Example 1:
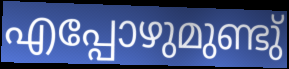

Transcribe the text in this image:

എപ്പോഴുമുണ്ടു്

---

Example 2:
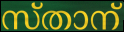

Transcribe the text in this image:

സ്താന്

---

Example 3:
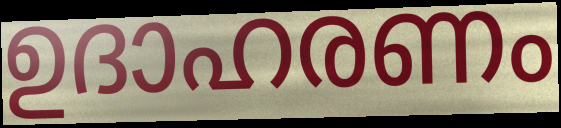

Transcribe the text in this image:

ഉദാഹരണം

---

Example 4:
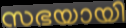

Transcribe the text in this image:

സഭയായി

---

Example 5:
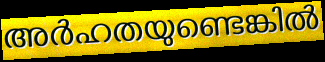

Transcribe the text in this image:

അർഹതയുണ്ടെങ്കിൽ